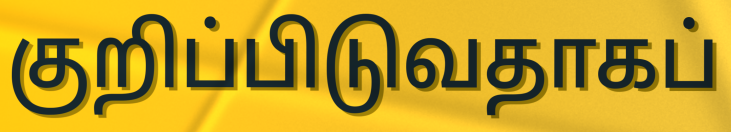
குறிப்பிடுவதாகப்